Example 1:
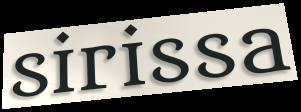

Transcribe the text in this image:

sirissa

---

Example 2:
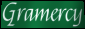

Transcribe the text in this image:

Gramercy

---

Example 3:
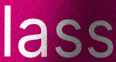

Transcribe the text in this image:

lass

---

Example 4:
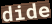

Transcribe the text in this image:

dide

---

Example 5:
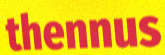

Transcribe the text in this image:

thennus